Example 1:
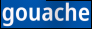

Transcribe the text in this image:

gouache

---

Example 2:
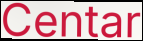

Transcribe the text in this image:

Centar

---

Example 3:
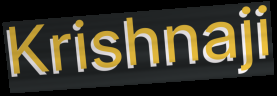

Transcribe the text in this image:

Krishnaji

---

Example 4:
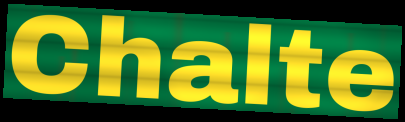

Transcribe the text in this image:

Chalte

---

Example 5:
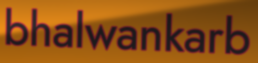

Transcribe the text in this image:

bhalwankarb